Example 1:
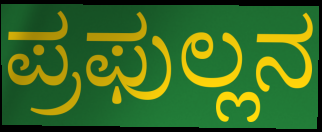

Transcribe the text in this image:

ಪ್ರಫುಲ್ಲನ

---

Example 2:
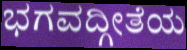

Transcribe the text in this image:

ಭಗವದ್ಗೀತೆಯ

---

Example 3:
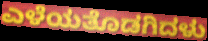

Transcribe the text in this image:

ಎಳೆಯತೊಡಗಿದಳು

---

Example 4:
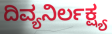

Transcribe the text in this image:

ದಿವ್ಯನಿರ್ಲಕ್ಷ್ಯ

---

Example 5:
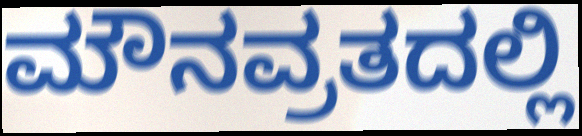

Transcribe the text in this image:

ಮೌನವ್ರತದಲ್ಲಿ